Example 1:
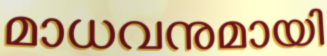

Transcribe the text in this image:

മാധവനുമായി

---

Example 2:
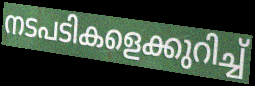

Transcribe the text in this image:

നടപടികളെക്കുറിച്ച്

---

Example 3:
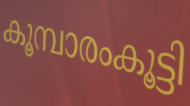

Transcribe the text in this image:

കൂമ്പാരംകൂട്ടി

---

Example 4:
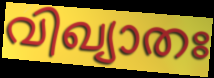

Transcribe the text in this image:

വിഖ്യാതഃ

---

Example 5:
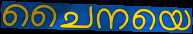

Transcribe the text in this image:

ചൈനയെ